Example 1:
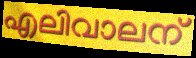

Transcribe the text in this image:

എലിവാലന്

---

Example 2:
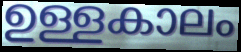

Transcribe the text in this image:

ഉള്ളകാലം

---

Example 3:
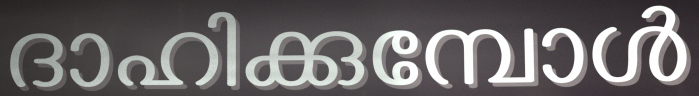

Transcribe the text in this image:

ദാഹിക്കുമ്പോൾ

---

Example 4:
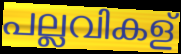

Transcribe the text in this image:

പല്ലവികള്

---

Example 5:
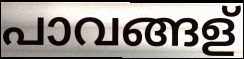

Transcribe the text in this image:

പാവങ്ങള്